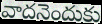
వాదనెందుకు